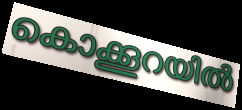
കൊക്കൂറയിൽ